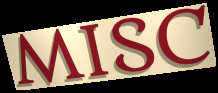
MISC